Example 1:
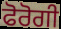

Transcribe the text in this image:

ਫੋਰੋਗੀ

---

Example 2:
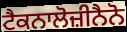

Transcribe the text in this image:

ਟੈਕਨਾਲੋਜ਼ੀਨੈਨੋ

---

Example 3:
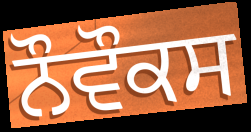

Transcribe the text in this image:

ਨੌਵੌਕਸ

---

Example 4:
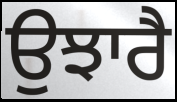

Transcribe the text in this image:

ਉਝਾਰੈ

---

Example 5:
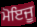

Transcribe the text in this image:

ਮੋਇਜੂ